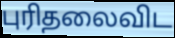
புரிதலைவிட